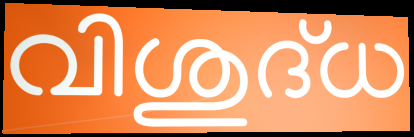
വിശുദ്‌ധ